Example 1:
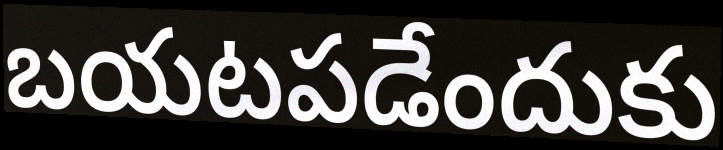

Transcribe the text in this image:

బయటపడేందుకు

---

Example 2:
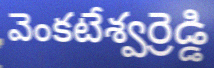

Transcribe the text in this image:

వెంకటేశ్వర్రెడ్డి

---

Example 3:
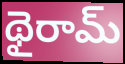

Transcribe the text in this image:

థైరామ్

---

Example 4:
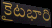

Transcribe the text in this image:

కైటభారి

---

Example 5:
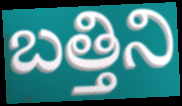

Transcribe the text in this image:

బత్తిని